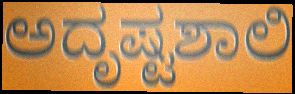
ಅದೃಷ್ಟಶಾಲಿ